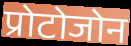
प्रोटोजोन